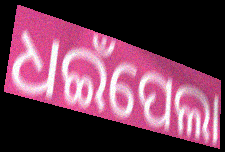
ଧଇଁପେଲା